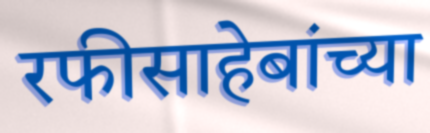
रफीसाहेबांच्या